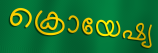
ക്രൊയേഷ്യ